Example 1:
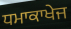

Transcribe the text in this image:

ਧਮਾਕਾਖੇਜ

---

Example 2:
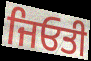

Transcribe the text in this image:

ਜਿਓਤੀ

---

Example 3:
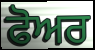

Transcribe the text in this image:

ਫੋਅਰ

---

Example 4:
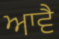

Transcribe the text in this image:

ਆਵੈ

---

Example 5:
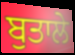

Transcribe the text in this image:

ਬੁਤਾਲੇ